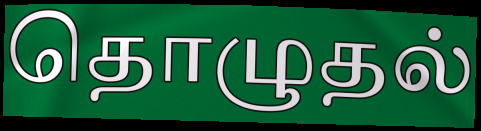
தொழுதல்